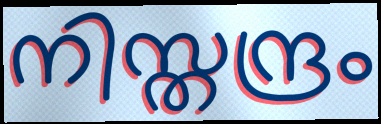
നിസ്തന്ദ്രം